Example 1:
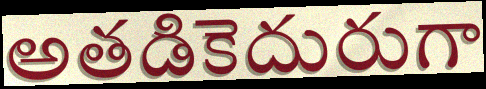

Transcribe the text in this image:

అతడికెదురుగా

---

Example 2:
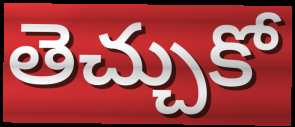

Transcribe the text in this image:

తెచ్చుకో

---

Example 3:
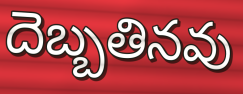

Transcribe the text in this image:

దెబ్బతినవు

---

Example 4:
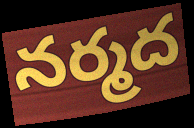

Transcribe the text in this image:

నర్మద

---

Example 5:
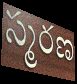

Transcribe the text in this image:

స్మరణ